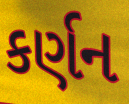
કર્ણન